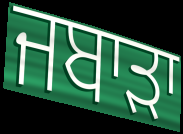
ਜਬਾੜਾ